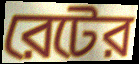
রেটের